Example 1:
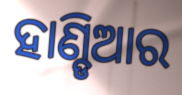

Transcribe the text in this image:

ହାଣ୍ଡିଆର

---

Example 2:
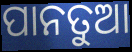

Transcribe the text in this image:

ପାନତୁଆ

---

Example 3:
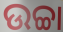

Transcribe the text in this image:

ଉଚ୍ଚା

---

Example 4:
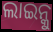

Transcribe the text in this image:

ଲାଇନ୍କୁ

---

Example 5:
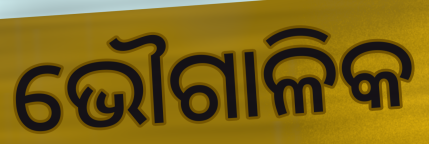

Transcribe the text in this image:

ଭୌଗାଳିକ